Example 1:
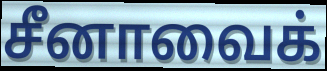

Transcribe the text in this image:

சீனாவைக்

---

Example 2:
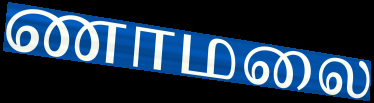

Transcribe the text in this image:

ணாமலை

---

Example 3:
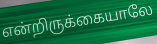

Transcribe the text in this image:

என்றிருக்கையாலே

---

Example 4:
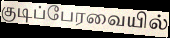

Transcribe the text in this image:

குடிப்பேரவையில்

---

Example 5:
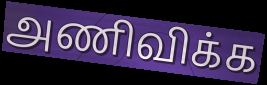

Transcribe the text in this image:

அணிவிக்க